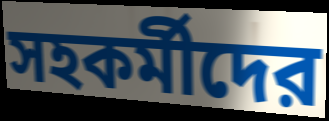
সহকর্মীদের